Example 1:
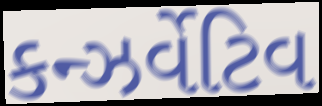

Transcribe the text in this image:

કન્ઝર્વેટિવ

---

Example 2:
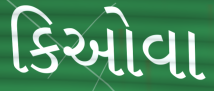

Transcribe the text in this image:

કિઓવા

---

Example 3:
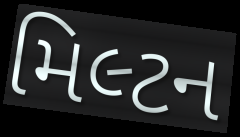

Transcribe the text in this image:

મિલ્ટન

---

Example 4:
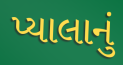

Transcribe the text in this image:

પ્યાલાનું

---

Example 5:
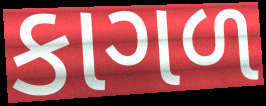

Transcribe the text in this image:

કાગળ